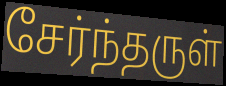
சேர்ந்தருள்